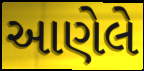
આણેલે